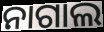
ନାଗାଲ